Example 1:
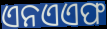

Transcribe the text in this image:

ଏନଏଏଫ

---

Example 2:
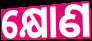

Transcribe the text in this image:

କ୍ଷୋଣ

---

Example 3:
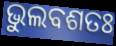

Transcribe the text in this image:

ଭୁଲବଶତଃ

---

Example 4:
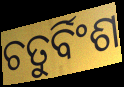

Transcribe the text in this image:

ଚତୁର୍ବିଂଶ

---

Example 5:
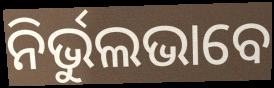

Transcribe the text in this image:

ନିର୍ଭୁଲଭାବେ